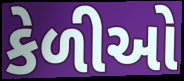
કેળીઓ